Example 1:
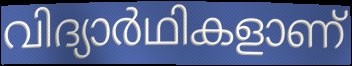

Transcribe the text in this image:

വിദ്യാർഥികളാണ്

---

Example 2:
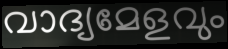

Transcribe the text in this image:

വാദ്യമേളവും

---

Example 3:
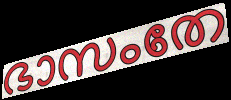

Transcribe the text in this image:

ഭാസംതേ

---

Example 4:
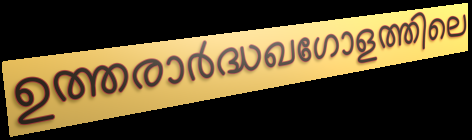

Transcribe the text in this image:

ഉത്തരാർദ്ധഖഗോളത്തിലെ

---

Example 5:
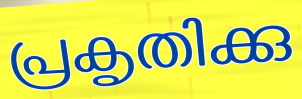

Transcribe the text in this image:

പ്രകൃതിക്കു